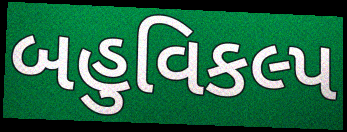
બહુવિકલ્પ